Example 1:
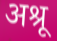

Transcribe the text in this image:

अश्रू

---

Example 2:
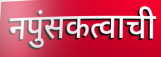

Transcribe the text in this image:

नपुंसकत्वाची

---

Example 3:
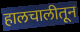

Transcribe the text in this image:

हालचालीतून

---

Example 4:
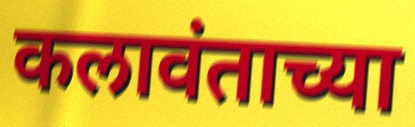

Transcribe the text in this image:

कलावंताच्या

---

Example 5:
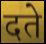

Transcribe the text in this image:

दते